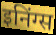
इनिंग्स